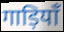
गाड़ियाँ